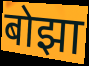
बोझा